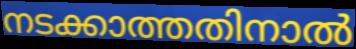
നടക്കാത്തതിനാൽ